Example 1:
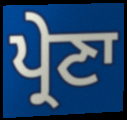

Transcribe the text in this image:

ਪ੍ਰੇਣਾ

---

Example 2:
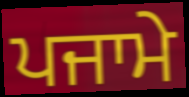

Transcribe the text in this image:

ਪਜਾਮੇ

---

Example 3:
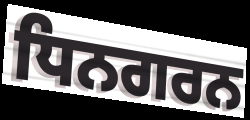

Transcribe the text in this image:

ਧਿਨਗਰਨ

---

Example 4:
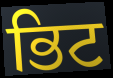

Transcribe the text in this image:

ਭਿਟ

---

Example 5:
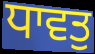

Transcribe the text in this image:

ਧਾਵਤੁ